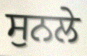
ਸੁਨਲੇ